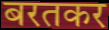
बरतकर